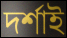
দৰ্শাই